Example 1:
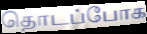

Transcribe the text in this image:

தொடப்போக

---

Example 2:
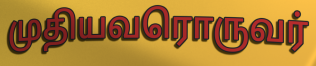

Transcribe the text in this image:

முதியவரொருவர்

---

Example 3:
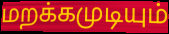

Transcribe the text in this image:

மறக்கமுடியும்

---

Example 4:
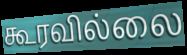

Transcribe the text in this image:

கூரவில்லை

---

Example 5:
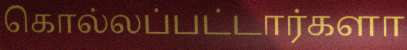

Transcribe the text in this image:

கொல்லப்பட்டார்களா